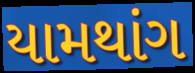
યામથાંગ